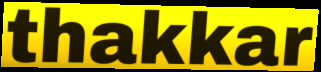
thakkar